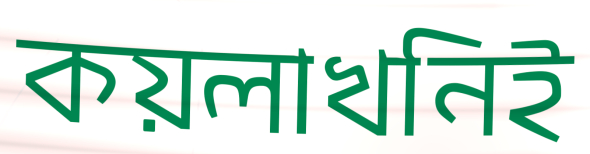
কয়লাখনিই